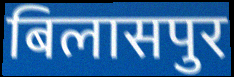
बिलासपुर